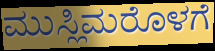
ಮುಸ್ಲಿಮರೊಳಗೆ